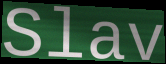
Slav